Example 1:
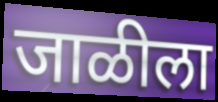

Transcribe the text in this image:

जाळीला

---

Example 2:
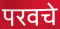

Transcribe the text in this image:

परवचे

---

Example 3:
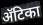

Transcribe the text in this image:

ॲटिका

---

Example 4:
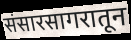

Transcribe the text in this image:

संसारसागरातून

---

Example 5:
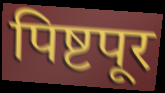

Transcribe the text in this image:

पिष्टपूर